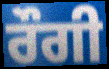
ਰੌਗੀ